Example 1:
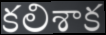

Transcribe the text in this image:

కలిశాక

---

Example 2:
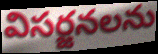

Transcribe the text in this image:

విసర్జనలను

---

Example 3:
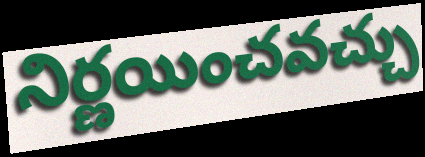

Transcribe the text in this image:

నిర్ణయించవచ్చు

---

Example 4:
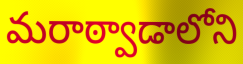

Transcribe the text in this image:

మరాఠ్వాడాలోని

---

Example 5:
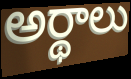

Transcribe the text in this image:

అర్థాలు